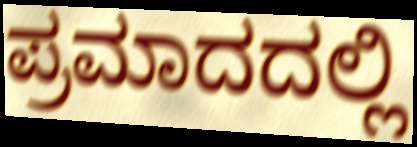
ಪ್ರಮಾದದಲ್ಲಿ